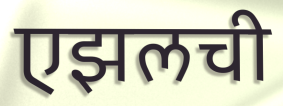
एझलची